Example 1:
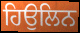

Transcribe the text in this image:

ਹਿਉਲਿਨ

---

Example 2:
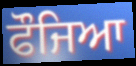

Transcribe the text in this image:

ਫੌਜਿਆ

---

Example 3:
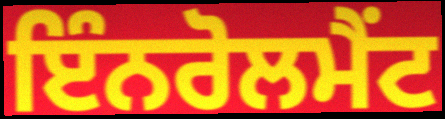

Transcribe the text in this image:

ਇੰਨਰੋਲਮੈਂਟ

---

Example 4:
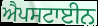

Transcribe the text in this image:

ਐਪਸਟਾਈਨ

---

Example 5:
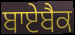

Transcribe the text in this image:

ਬਾਏਬੈਕ